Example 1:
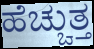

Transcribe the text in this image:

ಹೆಚ್ಚುತ್ತ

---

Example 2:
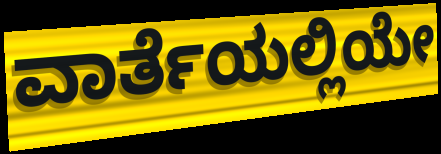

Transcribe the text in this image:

ವಾರ್ತೆಯಲ್ಲಿಯೇ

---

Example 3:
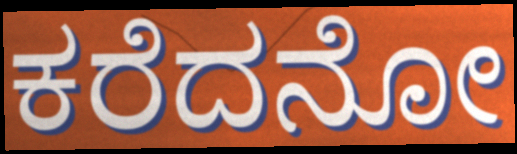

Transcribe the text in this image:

ಕರೆದನೋ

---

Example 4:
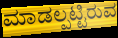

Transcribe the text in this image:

ಮಾಡಲ್ಪಟ್ಟಿರುವ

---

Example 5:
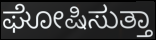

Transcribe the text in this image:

ಘೋಷಿಸುತ್ತಾ